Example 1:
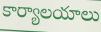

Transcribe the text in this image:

కార్యాలయాలు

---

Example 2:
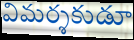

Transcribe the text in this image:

విమర్శకుడూ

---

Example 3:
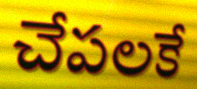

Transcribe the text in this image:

చేపలకే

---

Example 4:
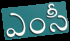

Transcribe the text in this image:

ఎంసీ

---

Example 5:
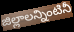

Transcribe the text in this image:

జిల్లాలన్నింటినీ